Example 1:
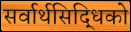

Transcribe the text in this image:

सर्वार्थसिद्धिको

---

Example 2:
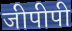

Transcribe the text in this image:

जीपीपी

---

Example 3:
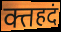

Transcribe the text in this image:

क्तहदं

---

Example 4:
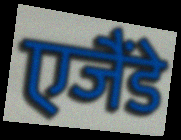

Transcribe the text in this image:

एजैंडे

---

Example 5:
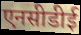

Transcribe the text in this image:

एनसीडीई